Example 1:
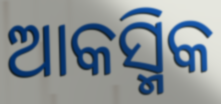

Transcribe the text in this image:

ଆକସ୍ମିକ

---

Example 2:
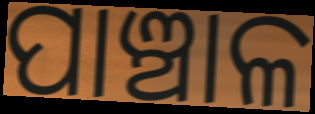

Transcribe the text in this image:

ପାଞ୍ଚାଳ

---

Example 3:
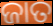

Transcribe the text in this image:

ଜାତ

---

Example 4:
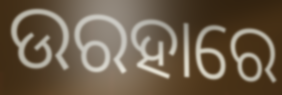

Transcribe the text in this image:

ଉରହାରେ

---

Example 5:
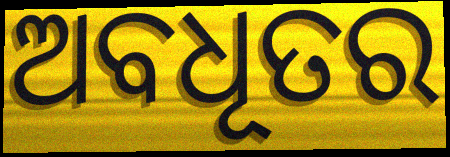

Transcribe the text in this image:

ଅବଧୂତର